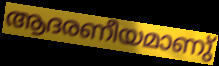
ആദരണീയമാണു്